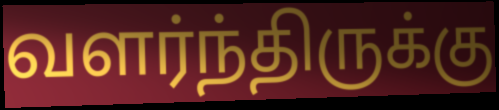
வளர்ந்திருக்கு